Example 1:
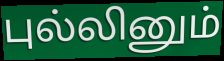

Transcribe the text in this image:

புல்லினும்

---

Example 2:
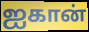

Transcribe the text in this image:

ஐகான்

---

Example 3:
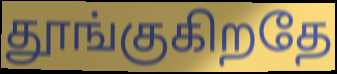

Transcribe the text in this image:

தூங்குகிறதே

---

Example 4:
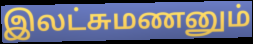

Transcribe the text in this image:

இலட்சுமணனும்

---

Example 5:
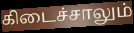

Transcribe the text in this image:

கிடைச்சாலும்